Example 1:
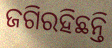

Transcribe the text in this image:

ଜଗିରହିଛନ୍ତି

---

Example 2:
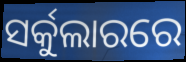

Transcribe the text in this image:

ସର୍କୁଲାରରେ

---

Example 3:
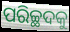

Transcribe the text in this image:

ପରିଚ୍ଛଦକୁ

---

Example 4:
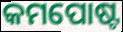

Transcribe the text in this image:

କମପୋଷ୍ଟ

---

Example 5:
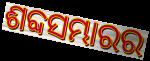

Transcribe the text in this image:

ଶବ୍ଦସମ୍ଭାରର